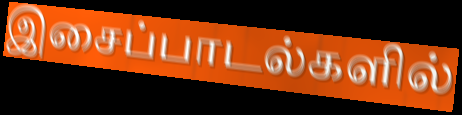
இசைப்பாடல்களில்